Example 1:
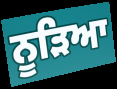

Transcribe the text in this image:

ਨੂੜਿਆ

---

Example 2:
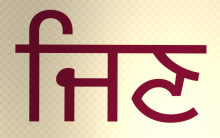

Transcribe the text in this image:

ਜਿਣ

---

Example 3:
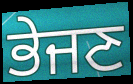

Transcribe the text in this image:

ਭੇਜਣ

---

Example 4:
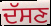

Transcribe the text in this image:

ਦੱਸਣ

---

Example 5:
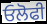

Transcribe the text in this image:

ਓਲੋਫੀ